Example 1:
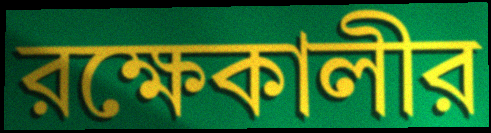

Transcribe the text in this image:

রক্ষেকালীর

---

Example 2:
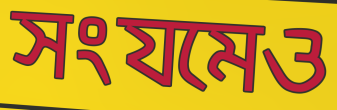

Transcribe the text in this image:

সংযমেও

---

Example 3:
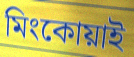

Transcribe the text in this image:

মিংকোয়াই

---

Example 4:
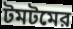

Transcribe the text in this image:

টমটমের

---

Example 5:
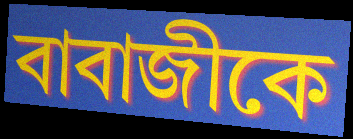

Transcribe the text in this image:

বাবাজীকে